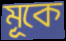
মূকে